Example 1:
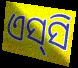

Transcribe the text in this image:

ଏସ୍‌ସି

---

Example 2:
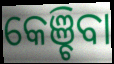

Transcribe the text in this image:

କେଞ୍ଚିବା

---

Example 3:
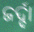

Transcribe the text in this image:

ଜର୍ଦ୍ଦା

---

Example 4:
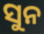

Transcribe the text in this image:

ସୁନ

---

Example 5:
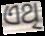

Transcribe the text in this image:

ଏଥି